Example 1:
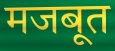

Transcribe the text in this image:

मजबूत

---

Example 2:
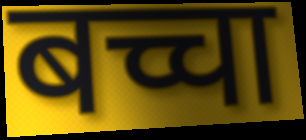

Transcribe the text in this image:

बच्चा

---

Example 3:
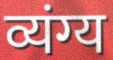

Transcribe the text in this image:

व्‍यंग्‍य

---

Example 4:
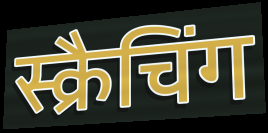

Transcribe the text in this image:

स्क्रैचिंग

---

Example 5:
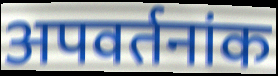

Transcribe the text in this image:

अपवर्तनांक